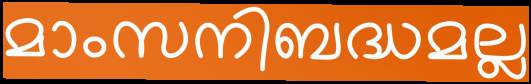
മാംസനിബദ്ധമല്ല